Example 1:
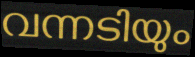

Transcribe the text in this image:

വന്നടിയും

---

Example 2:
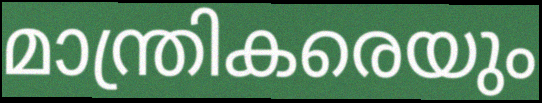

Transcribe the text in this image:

മാന്ത്രികരെയും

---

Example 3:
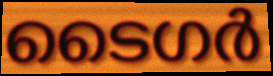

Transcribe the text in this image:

ടൈഗർ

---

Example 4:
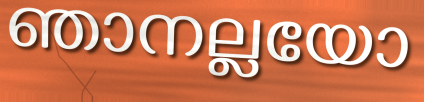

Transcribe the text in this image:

ഞാനല്ലയോ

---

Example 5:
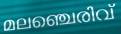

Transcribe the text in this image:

മലഞ്ചെരിവ്